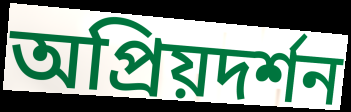
অপ্রিয়দর্শন